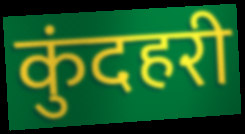
कुंदहरी